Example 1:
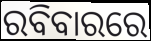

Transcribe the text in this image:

ରବିବାରରେ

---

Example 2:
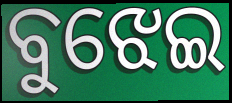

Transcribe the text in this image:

ବୁଝେଇ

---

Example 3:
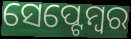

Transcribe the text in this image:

ସେପ୍ଟେମ୍ୱର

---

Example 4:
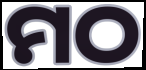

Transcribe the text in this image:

ମଠ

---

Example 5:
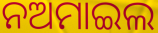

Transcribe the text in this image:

ନଅମାଇଲ